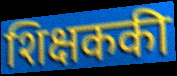
शिक्षककी